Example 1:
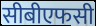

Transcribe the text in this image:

सीबीएफसी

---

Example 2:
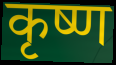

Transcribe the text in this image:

कृष्ण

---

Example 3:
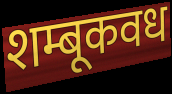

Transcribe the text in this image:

शम्बूकवध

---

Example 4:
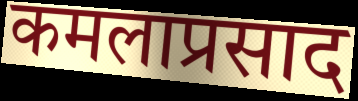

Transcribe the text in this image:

कमलाप्रसाद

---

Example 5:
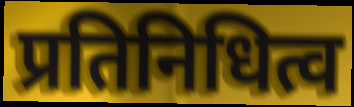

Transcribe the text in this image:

प्रतिनिधित्व